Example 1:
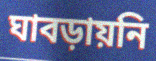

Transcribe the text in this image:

ঘাবড়ায়নি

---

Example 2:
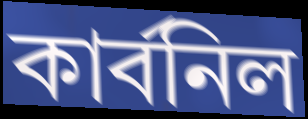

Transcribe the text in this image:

কার্বনিল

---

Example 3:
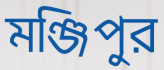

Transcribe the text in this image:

মঞ্জিপুর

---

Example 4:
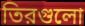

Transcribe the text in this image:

তিরগুলো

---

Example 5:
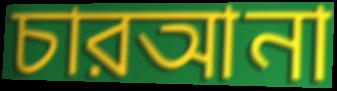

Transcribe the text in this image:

চারআনা